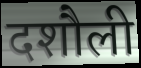
दशौली